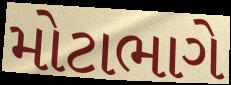
મોટાભાગે